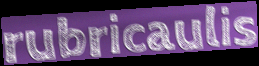
rubricaulis